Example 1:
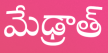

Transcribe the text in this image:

మేఢ్రాత్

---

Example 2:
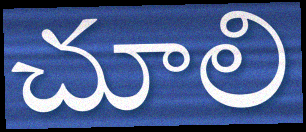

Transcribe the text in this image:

చూలి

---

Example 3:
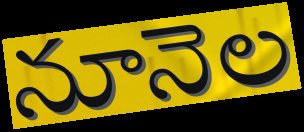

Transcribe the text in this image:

నూనెల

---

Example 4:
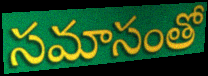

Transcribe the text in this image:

సమాసంతో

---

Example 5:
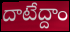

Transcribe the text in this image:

దాటేద్దాం